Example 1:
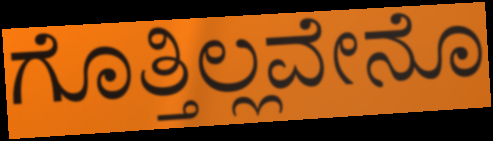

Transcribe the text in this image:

ಗೊತ್ತಿಲ್ಲವೇನೊ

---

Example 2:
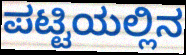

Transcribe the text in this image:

ಪಟ್ಟಿಯಲ್ಲಿನ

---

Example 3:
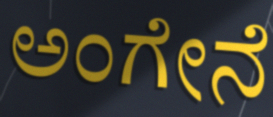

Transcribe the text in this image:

ಅಂಗೇನೆ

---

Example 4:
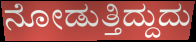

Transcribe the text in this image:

ನೋಡುತ್ತಿದ್ದುದು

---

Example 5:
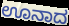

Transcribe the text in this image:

ಊನಾದ